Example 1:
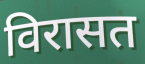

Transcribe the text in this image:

विरासत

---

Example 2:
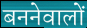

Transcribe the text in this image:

बननेवालों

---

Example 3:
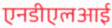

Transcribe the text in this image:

एनडीएलआई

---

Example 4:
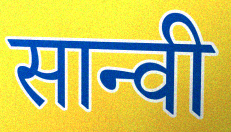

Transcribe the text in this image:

सान्वी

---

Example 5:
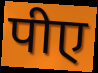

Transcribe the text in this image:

पीए